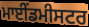
ਮਾਈਂਡਮੀਸਟਰ